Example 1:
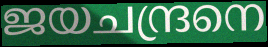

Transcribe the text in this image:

ജയചന്ദ്രനെ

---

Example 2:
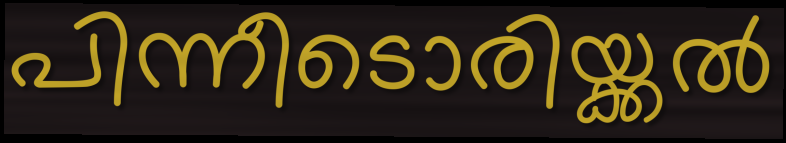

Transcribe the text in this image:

പിന്നീടൊരിയ്ക്കൽ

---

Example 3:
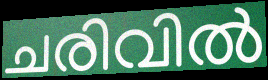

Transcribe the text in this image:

ചരിവിൽ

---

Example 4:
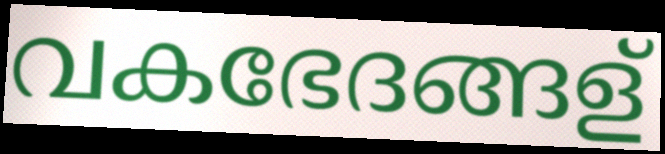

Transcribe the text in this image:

വകഭേദങ്ങള്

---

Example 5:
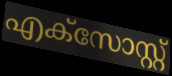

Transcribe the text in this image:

എക്സോസ്റ്റ്